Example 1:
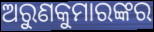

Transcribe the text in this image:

ଅରୁଣକୁମାରଙ୍କର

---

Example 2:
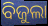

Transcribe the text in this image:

ବିଜୁଲା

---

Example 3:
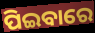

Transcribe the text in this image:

ପିଇବାରେ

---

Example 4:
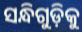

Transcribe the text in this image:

ସନ୍ଧିଗୁଡ଼ିକୁ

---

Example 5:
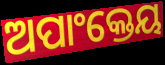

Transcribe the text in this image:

ଅପାଂକ୍ତେୟ